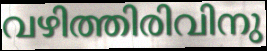
വഴിത്തിരിവിനു